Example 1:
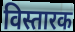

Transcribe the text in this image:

विस्तारक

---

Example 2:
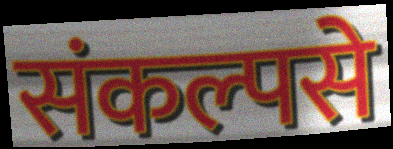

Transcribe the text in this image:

संकल्पसे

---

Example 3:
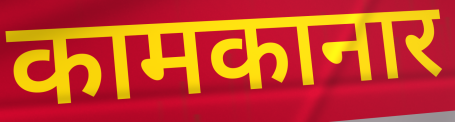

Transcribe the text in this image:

कामकानार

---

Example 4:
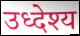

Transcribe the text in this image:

उध्देश्य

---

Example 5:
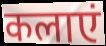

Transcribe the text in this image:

कलाएं